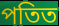
পতিত